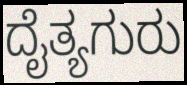
ದೈತ್ಯಗುರು